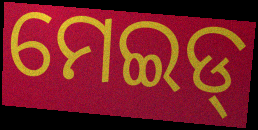
ମେଇଡ୍